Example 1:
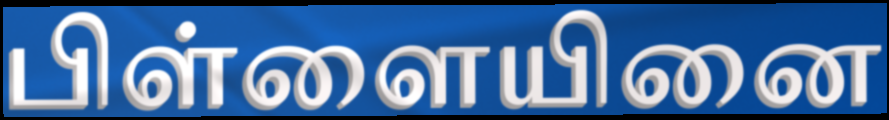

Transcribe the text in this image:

பிள்ளையினை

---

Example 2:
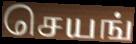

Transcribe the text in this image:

செயங்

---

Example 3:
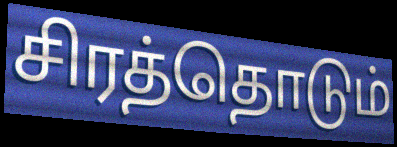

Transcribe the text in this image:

சிரத்தொடும்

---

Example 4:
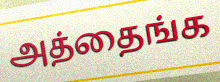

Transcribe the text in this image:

அத்தைங்க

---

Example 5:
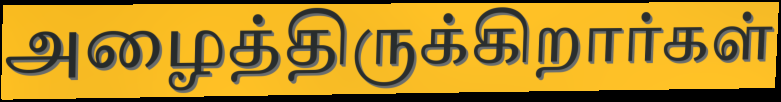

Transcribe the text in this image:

அழைத்திருக்கிறார்கள்